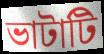
ভাটাটি